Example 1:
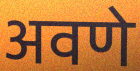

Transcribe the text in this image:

अवणे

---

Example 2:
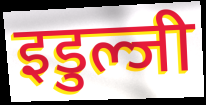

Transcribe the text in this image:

इडुल्जी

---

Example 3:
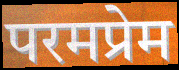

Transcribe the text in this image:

परमप्रेम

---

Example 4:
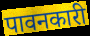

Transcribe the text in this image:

पावनकारी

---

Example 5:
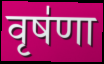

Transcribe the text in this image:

वृष॑णा